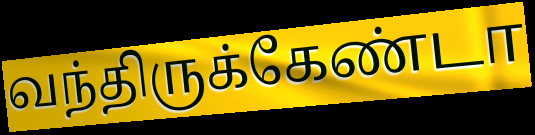
வந்திருக்கேண்டா